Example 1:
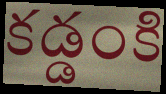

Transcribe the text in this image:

కడ్డంకి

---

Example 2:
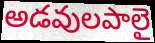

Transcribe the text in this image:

అడవులపాలై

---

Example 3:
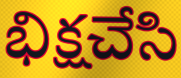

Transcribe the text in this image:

భిక్షచేసి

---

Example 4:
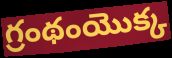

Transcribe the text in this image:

గ్రంథంయొక్క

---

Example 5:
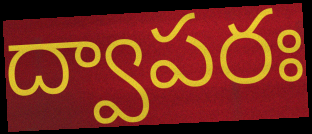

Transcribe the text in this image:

ద్వాపరః